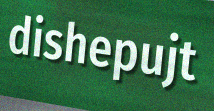
dishepujt